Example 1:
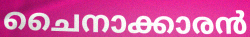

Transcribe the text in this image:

ചൈനാക്കാരൻ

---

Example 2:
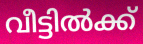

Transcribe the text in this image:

വീട്ടിൽക്ക്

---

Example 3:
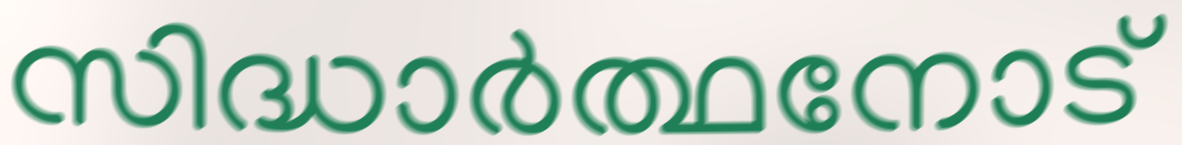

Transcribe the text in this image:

സിദ്ധാർത്ഥനോട്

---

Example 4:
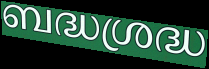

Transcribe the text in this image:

ബദ്ധശ്രദ്ധ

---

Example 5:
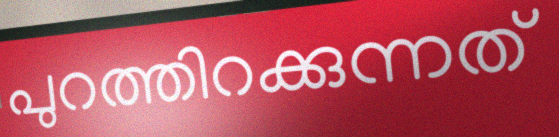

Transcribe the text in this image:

പുറത്തിറക്കുന്നത്